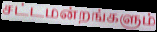
சட்டமன்றங்களும்